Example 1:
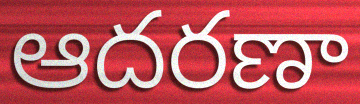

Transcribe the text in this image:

ఆదరణా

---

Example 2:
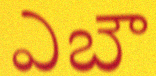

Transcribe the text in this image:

ఎబౌ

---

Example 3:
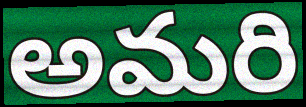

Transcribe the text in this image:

అమరి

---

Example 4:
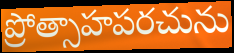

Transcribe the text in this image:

ప్రోత్సాహపరచును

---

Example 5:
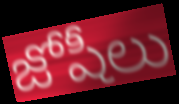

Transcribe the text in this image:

జోషీలు